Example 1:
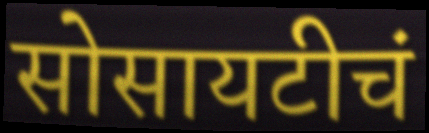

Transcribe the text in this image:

सोसायटीचं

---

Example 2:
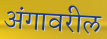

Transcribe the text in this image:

अंगावरील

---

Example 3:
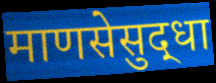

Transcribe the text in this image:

माणसेसुद्धा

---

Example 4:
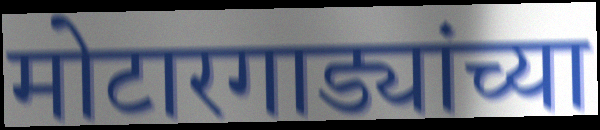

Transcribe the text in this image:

मोटारगाड्यांच्या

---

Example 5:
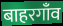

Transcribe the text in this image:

बाहरगाँव